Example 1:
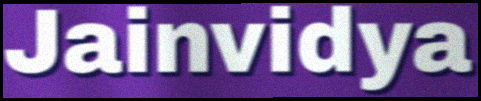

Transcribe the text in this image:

Jainvidya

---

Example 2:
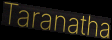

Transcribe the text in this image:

Taranatha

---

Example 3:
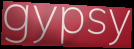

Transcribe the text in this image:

gypsy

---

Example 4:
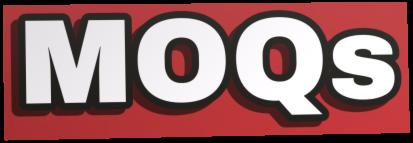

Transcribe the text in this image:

MOQs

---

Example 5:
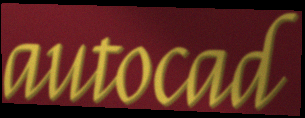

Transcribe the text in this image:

autocad